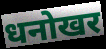
धनोखर